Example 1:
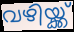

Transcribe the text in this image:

വഴിയ്ക്ക്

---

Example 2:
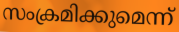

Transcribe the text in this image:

സംക്രമിക്കുമെന്ന്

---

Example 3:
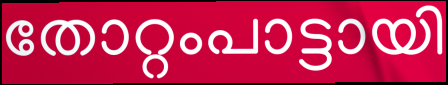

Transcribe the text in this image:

തോറ്റംപാട്ടായി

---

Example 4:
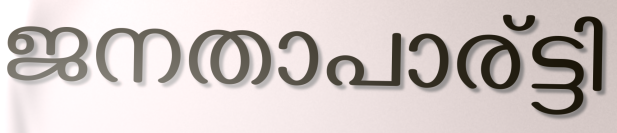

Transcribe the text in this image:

ജനതാപാര്ട്ടി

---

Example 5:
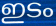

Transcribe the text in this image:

ഇടം